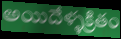
అయిదేళ్ళక్రితం